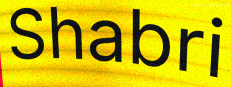
Shabri